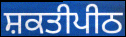
ਸ਼ਕਤੀਪੀਠ